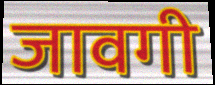
जावगी